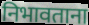
निभावताना